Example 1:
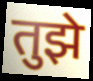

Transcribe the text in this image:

तुझे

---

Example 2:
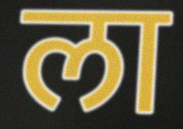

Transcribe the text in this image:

ला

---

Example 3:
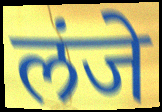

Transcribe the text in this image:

लंजे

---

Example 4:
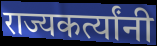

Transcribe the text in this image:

राज्यकर्त्यांनी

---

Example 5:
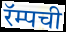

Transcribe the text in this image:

रॅम्पची